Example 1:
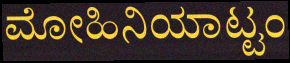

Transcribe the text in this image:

ಮೋಹಿನಿಯಾಟ್ಟಂ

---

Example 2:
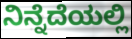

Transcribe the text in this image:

ನಿನ್ನೆದೆಯಲ್ಲಿ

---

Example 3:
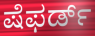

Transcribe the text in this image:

ಷೆಫರ್ಡ್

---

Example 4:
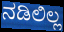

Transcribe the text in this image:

ನಡಿಲಿಲ್ಲ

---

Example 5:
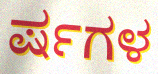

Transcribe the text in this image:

ರ್ಷಗಳ